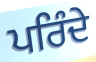
ਪਰਿੰਦੇ